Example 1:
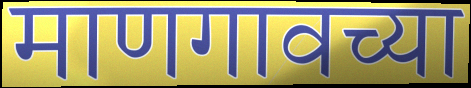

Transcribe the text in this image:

माणगावच्या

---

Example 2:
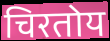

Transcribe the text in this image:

चिरतोय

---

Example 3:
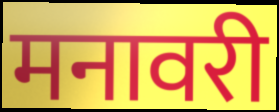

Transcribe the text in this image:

मनावरी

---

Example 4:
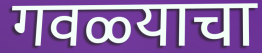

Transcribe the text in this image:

गवळ्याचा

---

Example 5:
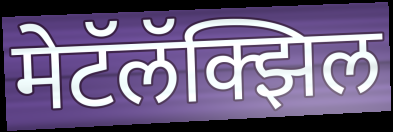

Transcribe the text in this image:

मेटॅलॅक्झिल